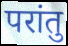
परांतु